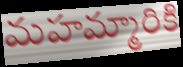
మహమ్మారికి